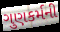
ગુણકર્મની